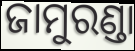
ଜାମୁରଣ୍ଡା